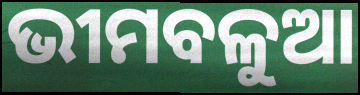
ଭୀମବଳୁଆ